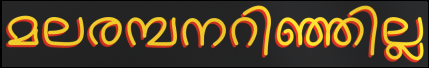
മലരമ്പനറിഞ്ഞില്ല